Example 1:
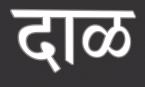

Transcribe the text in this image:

दाळ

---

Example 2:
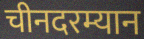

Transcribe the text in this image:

चीनदरम्यान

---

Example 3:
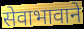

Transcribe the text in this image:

सेवाभावाने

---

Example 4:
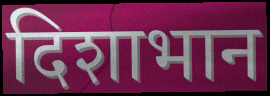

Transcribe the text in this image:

दिशाभान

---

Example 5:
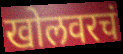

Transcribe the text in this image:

खोलवरचं